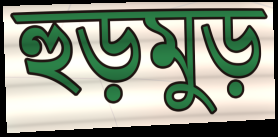
হুড়মুড়